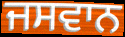
ਜਸਵਾਨ